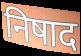
निषाद